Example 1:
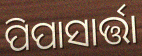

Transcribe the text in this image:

ପିପାସାର୍ତ୍ତା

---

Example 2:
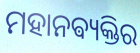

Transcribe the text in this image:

ମହାନଵ୍ୟକ୍ତିର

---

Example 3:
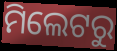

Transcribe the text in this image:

ମିଲେଟରୁ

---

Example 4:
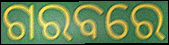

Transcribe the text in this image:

ଗରବରେ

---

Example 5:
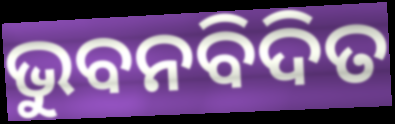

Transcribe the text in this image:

ଭୁବନବିଦିତ